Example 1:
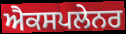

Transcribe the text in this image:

ਐਕਸਪਲੇਨਰ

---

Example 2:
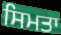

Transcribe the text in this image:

ਸਿਮਤਾ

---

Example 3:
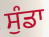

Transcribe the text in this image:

ਸੁੰਡਾ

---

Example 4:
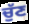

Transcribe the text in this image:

ਚੁੱਣ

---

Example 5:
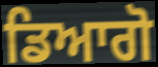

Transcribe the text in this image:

ਡਿਆਗੋ